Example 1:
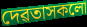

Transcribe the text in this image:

দেৱতাসকলো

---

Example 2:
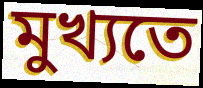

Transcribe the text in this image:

মুখ্যতে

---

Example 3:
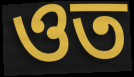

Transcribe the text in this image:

ওত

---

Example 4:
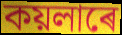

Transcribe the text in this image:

কয়লাৰে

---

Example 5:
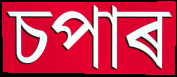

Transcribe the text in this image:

চপাৰ